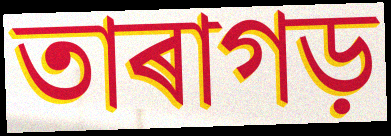
তাৰাগড়